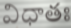
విధాతః